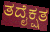
ತದೈಕ್ಷತ